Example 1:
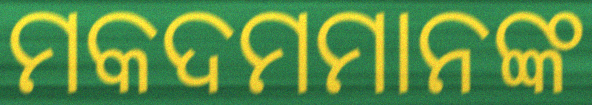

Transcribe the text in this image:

ମକଦମମାନଙ୍କ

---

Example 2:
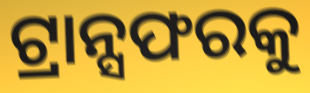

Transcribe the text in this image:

ଟ୍ରାନ୍ସଫରକୁ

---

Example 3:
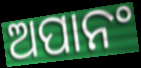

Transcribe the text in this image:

ଅପାନଂ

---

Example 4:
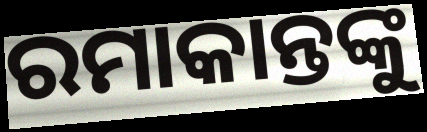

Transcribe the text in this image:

ରମାକାନ୍ତଙ୍କୁ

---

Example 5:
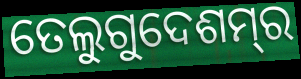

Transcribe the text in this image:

ତେଲୁଗୁଦେଶମ୍‌ର